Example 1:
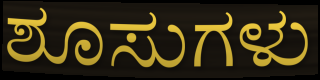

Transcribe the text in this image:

ಶೂಸುಗಳು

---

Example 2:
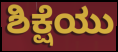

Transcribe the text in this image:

ಶಿಕ್ಷೆಯು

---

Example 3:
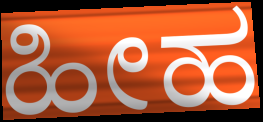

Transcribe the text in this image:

ಹೀಹ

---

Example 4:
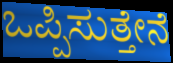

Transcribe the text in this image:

ಒಪ್ಪಿಸುತ್ತೇನೆ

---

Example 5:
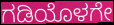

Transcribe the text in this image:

ಗಡಿಯೊಳಗೇ